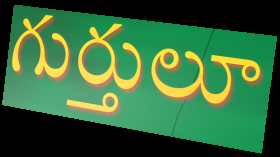
గుర్తులూ